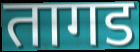
तागड